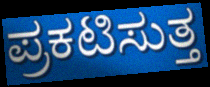
ಪ್ರಕಟಿಸುತ್ತ